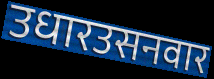
उधारउसनवार